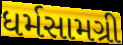
ધર્મસામગ્રી